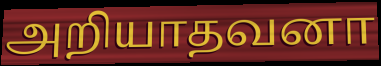
அறியாதவனா